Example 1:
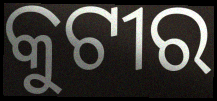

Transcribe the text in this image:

କୁଟୀର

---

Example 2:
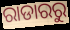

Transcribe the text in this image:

ରାଡାରରୁ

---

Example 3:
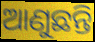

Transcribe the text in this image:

ଆଣୁଛନ୍ତି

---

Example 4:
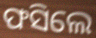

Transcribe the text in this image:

ଫସିଲେ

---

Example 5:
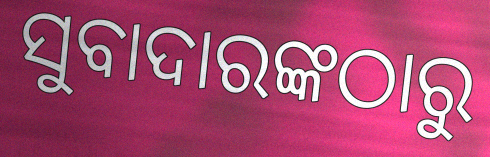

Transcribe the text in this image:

ସୁବାଦାରଙ୍କଠାରୁ